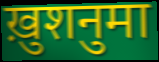
ख़ुशनुमा